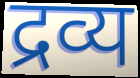
द्रव्य